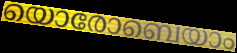
യൊരോബെയാം